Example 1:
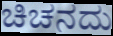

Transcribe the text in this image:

ಚಿಚನದು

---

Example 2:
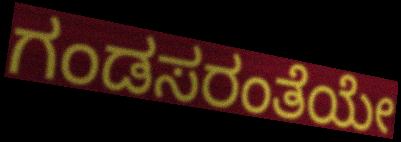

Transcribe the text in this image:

ಗಂಡಸರಂತೆಯೇ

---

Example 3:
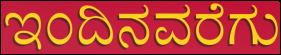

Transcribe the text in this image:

ಇಂದಿನವರೆಗು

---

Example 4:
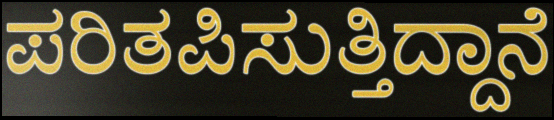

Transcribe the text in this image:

ಪರಿತಪಿಸುತ್ತಿದ್ದಾನೆ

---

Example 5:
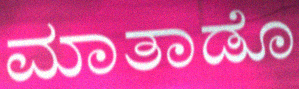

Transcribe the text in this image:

ಮಾತಾಡೊ